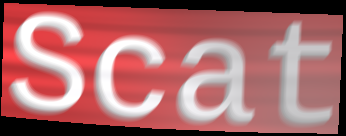
Scat